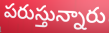
పరుస్తున్నారు